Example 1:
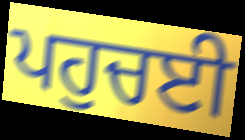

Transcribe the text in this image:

ਪਹੁਚਈ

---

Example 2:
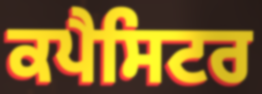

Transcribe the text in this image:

ਕਪੈਸਿਟਰ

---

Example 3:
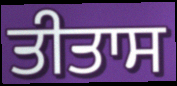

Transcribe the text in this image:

ਤੀਤਾਸ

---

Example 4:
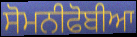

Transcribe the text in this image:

ਸੋਮਨੀਫੋਬੀਆ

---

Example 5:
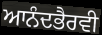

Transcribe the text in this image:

ਆਨੰਦਭੈਰਵੀ